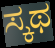
ಸ್ಕಥ